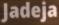
Jadeja